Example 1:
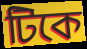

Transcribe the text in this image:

টিকে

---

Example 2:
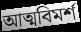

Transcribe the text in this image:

আত্মবিমর্শ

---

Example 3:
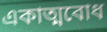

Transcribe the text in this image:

একাত্মবোধ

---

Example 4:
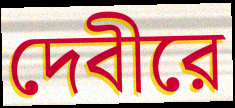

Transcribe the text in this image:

দেবীরে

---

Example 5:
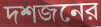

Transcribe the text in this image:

দশজনের